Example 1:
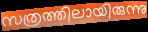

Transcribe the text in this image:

സത്രത്തിലായിരുന്നു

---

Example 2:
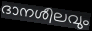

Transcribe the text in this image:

ദാനശീലവും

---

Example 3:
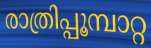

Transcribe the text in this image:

രാത്രിപ്പൂമ്പാറ്റ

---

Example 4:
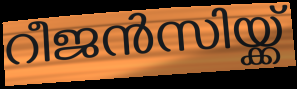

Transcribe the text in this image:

റീജൻസിയ്ക്ക്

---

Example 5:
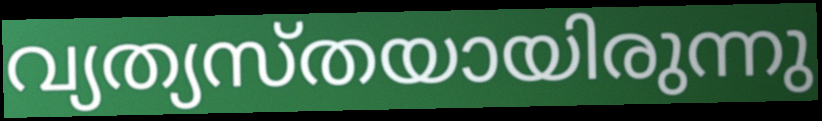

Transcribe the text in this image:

വ്യത്യസ്തയായിരുന്നു